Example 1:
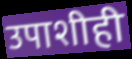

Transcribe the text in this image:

उपाशीही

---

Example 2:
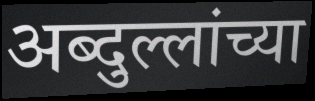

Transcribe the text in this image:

अब्दुल्लांच्या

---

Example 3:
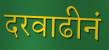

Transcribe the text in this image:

दरवाढीनं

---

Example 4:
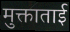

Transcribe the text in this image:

मुक्ताताई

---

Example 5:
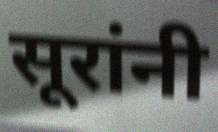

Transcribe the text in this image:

सूरांनी